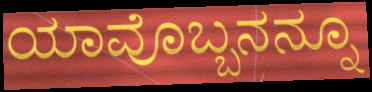
ಯಾವೊಬ್ಬನನ್ನೂ